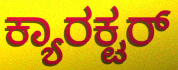
ಕ್ಯಾರಕ್ಟರ್